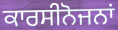
ਕਾਰਸੀਨੋਜਨਾਂ